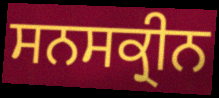
ਸਨਸਕ੍ਰੀਨ